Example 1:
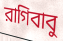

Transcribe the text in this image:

রাগিবাবু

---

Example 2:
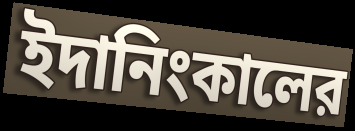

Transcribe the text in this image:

ইদানিংকালের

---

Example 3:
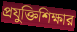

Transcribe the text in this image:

প্রযুক্তিশিক্ষার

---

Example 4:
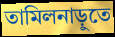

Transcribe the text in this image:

তামিলনাড়ুতে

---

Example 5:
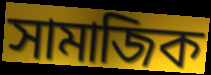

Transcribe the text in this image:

সামাজিক